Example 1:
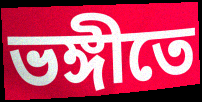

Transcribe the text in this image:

ভঙ্গীতে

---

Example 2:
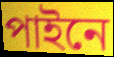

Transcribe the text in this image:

পাইনে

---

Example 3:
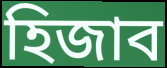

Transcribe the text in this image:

হিজাব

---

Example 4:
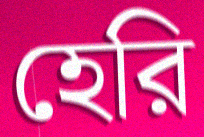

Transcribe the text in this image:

হেরি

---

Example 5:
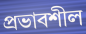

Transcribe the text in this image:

প্রভাবশীল